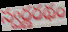
స్వర్ణరథం